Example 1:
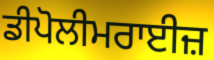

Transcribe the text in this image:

ਡੀਪੋਲੀਮਰਾਈਜ਼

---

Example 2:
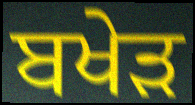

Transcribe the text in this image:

ਬਖੇੜ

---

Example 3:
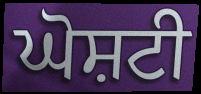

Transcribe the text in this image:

ਘੋਸ਼ਟੀ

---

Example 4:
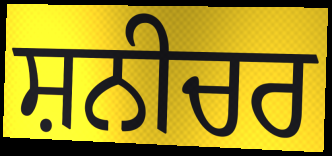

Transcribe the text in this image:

ਸ਼ਨੀਚਰ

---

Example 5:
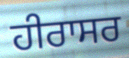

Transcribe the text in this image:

ਹੀਰਾਸਰ